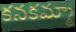
కనకమ్మా